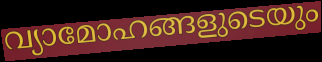
വ്യാമോഹങ്ങളുടെയും